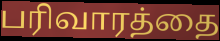
பரிவாரத்தை